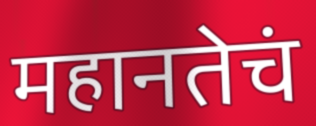
महानतेचं